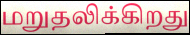
மறுதலிக்கிறது